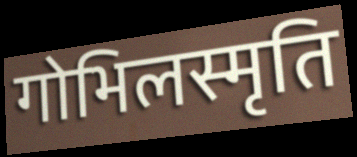
गोभिलस्मृति